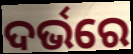
ଦର୍ଭରେ